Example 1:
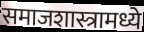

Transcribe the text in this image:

समाजशास्त्रामध्ये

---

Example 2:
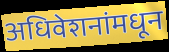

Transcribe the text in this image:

अधिवेशनांमधून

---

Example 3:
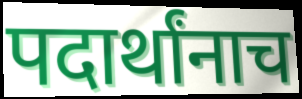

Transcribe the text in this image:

पदार्थांनाच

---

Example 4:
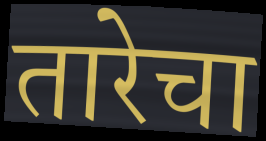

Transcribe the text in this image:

तारेचा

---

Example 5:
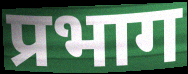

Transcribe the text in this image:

प्रभाग